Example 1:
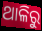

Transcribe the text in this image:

ଥାଳିରୁ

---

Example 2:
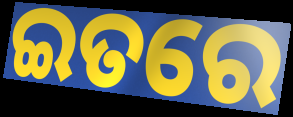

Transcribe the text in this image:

ଇତରେ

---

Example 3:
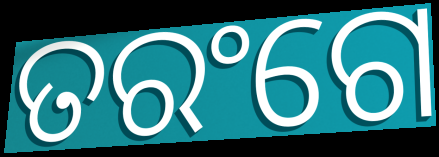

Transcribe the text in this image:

ତରଂଗେ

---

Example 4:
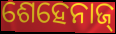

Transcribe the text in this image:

ଶେହେନାଜ୍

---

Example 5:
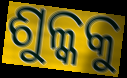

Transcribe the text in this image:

ଶୁଳ୍କକୁ